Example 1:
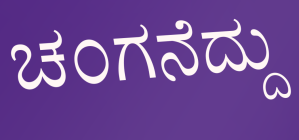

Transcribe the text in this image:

ಚಂಗನೆದ್ದು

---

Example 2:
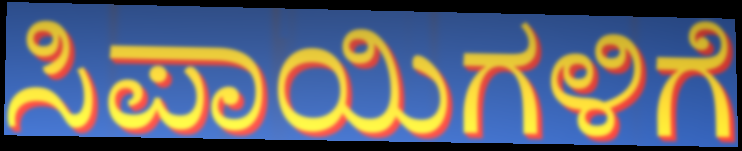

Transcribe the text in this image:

ಸಿಪಾಯಿಗಳಿಗೆ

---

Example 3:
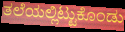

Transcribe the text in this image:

ತಲೆಯಲ್ಲಿಟ್ಟುಕೊಂಡು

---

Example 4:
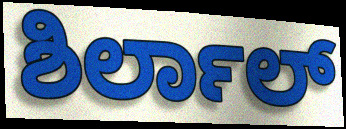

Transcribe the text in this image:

ಶಿರ್ಲಾಲ್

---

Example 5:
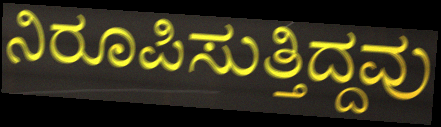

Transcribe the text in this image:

ನಿರೂಪಿಸುತ್ತಿದ್ದವು